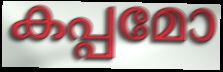
കപ്പമോ